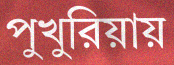
পুখুরিয়ায়